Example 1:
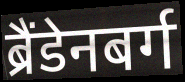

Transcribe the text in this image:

ब्रैंडेनबर्ग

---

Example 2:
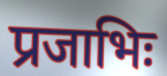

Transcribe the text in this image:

प्रजाभिः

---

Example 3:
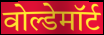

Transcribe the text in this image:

वोल्डेमॉर्ट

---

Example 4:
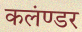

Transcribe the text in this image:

कलंण्डर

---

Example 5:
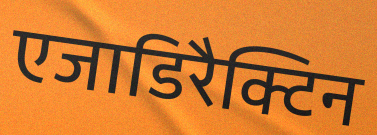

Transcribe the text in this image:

एजाडिरैक्टिन